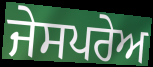
ਜੇਸਪਰੇਅ